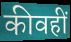
कीवहीं